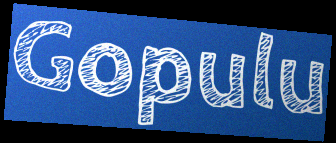
Gopulu